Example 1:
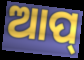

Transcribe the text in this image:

ଆପ୍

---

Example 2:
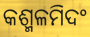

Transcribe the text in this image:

କଶ୍ମଳମିଦଂ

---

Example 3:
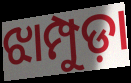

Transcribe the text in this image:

ଝାମ୍ପୁଡ଼ା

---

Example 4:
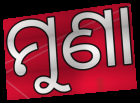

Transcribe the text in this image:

ମୁଣା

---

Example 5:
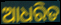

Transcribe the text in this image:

ଆଧରିତ